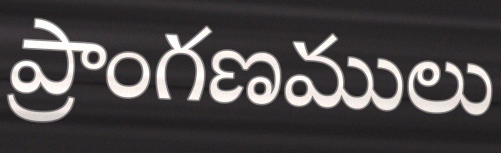
ప్రాంగణములు